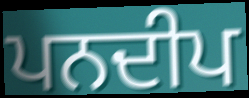
ਪਨਦੀਪ